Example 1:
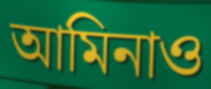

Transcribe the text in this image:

আমিনাও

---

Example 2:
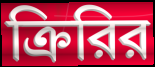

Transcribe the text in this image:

ক্রিরির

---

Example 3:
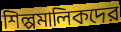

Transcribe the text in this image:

শিল্পমালিকদের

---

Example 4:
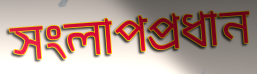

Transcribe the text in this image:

সংলাপপ্রধান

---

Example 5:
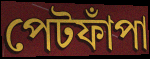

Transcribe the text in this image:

পেটফাঁপা